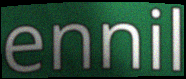
ennil